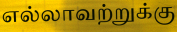
எல்லாவற்றுக்கு